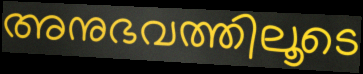
അനുഭവത്തിലൂടെ